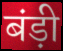
बंड़ी